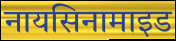
नायसिनामाइड